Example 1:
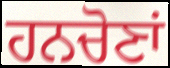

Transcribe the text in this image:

ਹਨਚੋਣਾਂ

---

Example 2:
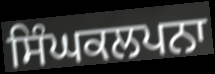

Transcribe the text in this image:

ਸਿੰਘਕਲਪਨਾ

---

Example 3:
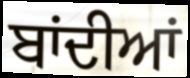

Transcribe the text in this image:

ਬਾਂਦੀਆਂ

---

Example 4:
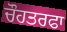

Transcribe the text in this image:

ਚੌਹਤਰਫਾ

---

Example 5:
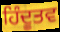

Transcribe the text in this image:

ਹਿੰਦੂਤਵ